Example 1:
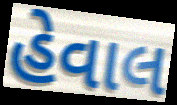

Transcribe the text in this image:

હેવાલ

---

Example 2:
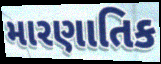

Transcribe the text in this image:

મારણાતિક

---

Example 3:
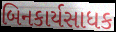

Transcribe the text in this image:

બિનકાર્યસાધક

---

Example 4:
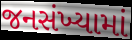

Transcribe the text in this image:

જનસંખ્યામાં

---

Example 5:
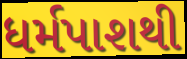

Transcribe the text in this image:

ધર્મપાશથી